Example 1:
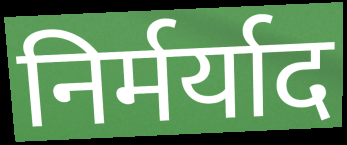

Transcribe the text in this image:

निर्मर्याद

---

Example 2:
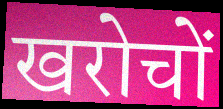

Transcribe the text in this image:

खरोचों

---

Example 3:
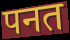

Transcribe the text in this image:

पनत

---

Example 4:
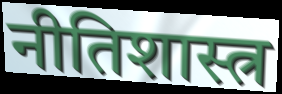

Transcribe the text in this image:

नीतिशास्त्र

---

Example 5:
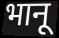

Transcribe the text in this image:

भानू